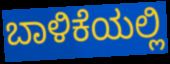
ಬಾಳಿಕೆಯಲ್ಲಿ